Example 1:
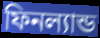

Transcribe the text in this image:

ফিনল্যান্ড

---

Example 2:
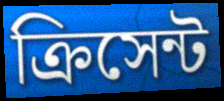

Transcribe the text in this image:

ক্রিসেন্ট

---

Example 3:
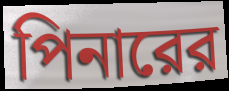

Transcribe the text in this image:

পিনারের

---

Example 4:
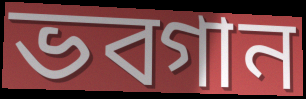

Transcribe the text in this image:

ভবগান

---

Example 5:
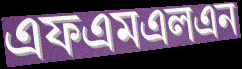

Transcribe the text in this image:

এফএমএলএন